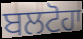
ਬਲਟੋਹਾ